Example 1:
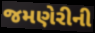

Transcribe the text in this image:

જમણેરીની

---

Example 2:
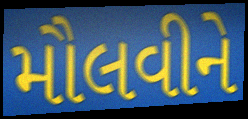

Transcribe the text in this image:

મૌલવીને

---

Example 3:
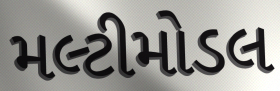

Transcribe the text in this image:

મલ્ટીમોડલ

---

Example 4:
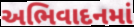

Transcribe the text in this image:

અભિવાદનમાં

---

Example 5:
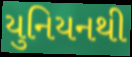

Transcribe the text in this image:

યુનિયનથી